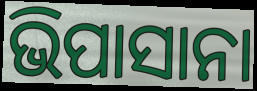
ଭିପାସାନା